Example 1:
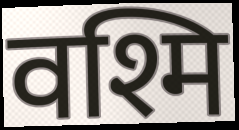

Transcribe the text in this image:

वश्मि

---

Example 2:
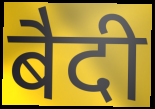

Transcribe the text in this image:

बैदी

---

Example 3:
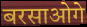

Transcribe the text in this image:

बरसाओगे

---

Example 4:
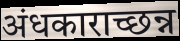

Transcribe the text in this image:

अंधकाराच्छन्न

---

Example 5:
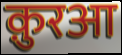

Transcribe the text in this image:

क़ुरआ